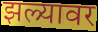
झल्यावर